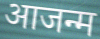
आजन्म